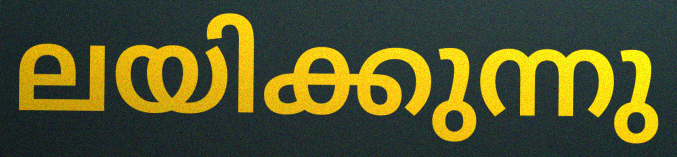
ലയിക്കുന്നു